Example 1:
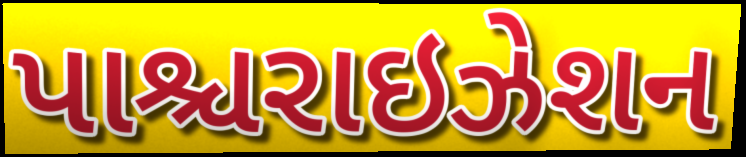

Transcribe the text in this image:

પાશ્ચરાઇઝેશન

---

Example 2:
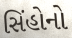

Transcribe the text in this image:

સિંહોનો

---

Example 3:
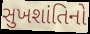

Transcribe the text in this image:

સુખશાંતિનો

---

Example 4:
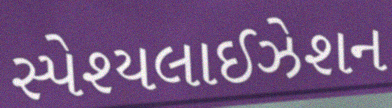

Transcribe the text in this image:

સ્પેશ્યલાઈઝેશન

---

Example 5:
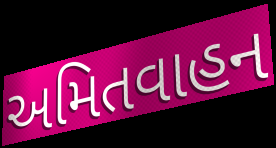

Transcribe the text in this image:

અમિતવાહન